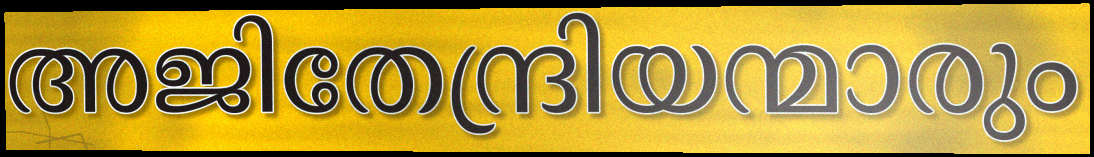
അജിതേന്ദ്രിയന്മാരും